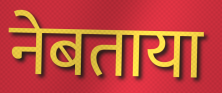
नेबताया